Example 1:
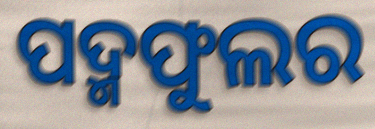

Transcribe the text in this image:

ପଦ୍ମଫୁଲର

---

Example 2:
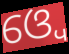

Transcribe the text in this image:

ଓ୍ବେ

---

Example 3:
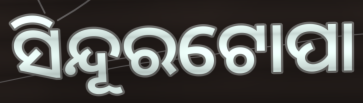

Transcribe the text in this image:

ସିନ୍ଦୂରଟୋପା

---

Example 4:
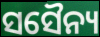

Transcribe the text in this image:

ସସୈନ୍ୟ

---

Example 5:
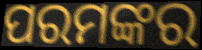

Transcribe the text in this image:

ପରମଙ୍କର